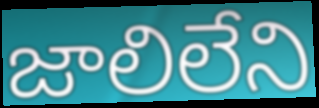
జాలిలేని